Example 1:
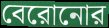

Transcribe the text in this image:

বেরোনোর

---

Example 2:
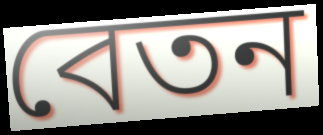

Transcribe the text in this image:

বেতন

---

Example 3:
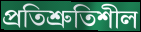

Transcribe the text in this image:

প্রতিশ্রুতিশীল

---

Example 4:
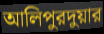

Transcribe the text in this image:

আলিপুরদুয়ার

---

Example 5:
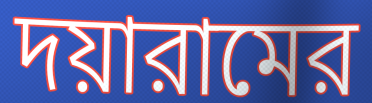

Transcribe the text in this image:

দয়ারামের